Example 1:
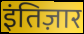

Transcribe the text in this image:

इंतिज़ार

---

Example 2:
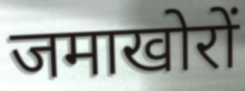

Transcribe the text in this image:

जमाखोरों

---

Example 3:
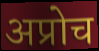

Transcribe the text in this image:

अप्रोच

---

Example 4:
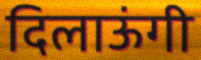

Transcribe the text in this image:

दिलाऊंगी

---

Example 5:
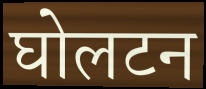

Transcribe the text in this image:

घोलटन